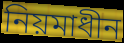
নিয়মাধীন